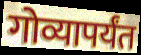
गोव्यापर्यंत